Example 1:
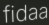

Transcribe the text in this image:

fidaa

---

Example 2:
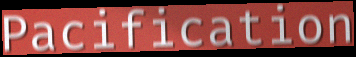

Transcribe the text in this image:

Pacification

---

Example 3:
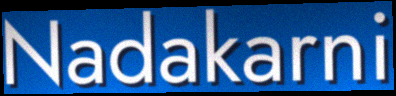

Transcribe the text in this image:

Nadakarni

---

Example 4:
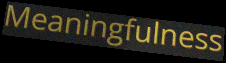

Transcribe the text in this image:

Meaningfulness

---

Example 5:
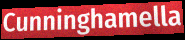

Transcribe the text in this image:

Cunninghamella